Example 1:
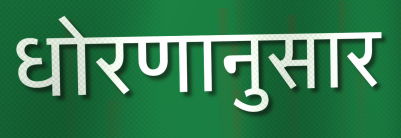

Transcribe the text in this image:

धोरणानुसार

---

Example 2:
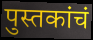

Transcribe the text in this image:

पुस्तकांचं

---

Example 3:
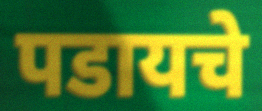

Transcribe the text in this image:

पडायचे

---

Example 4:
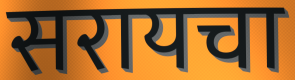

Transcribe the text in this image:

सरायचा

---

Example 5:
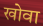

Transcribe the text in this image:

खोवा